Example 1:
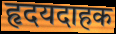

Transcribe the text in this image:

हृदयदाहक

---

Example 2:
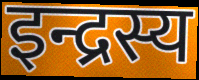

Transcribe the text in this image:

इन्द्रस्य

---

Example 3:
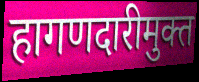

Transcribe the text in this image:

हागणदारीमुक्त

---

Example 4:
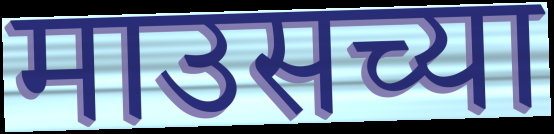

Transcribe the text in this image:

माउसच्या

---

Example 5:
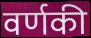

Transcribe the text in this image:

वर्णकी